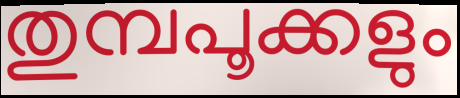
തുമ്പപൂക്കളും